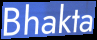
Bhakta